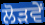
ਲੋੜਵੇਂ